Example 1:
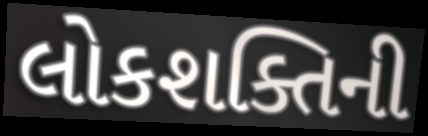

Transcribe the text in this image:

લોકશક્તિની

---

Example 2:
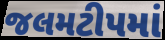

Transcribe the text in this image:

જલમટીપમાં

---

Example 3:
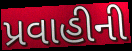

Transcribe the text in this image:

પ્રવાહીની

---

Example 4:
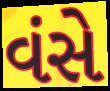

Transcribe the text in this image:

વંસે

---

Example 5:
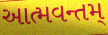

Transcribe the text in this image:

આત્મવન્તમ્